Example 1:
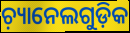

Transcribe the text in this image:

ଚ଼୍ୟାନେଲଗୁଡ଼ିକ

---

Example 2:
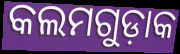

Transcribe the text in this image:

କଲମଗୁଡ଼ାକ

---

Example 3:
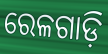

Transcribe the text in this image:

ରେଳଗାଡ଼ି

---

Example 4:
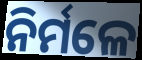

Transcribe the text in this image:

ନିର୍ମଳେ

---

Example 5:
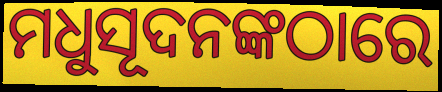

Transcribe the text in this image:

ମଧୁସୂଦନଙ୍କଠାରେ